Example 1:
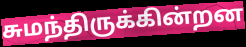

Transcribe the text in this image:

சுமந்திருக்கின்றன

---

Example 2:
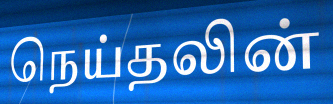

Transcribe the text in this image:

நெய்தலின்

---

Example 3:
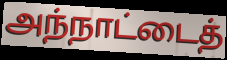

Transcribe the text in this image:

அந்நாட்டைத்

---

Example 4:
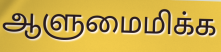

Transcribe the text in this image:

ஆளுமைமிக்க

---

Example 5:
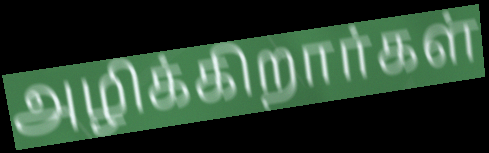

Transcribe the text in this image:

அழிக்கிறார்கள்